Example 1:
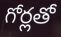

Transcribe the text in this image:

గోర్లతో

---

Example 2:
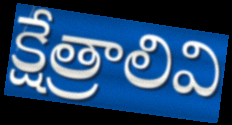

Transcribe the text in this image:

క్షేత్రాలివి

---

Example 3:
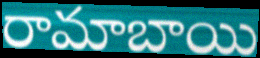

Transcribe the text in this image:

రామాబాయి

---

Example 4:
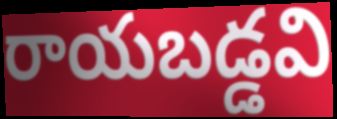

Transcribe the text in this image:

రాయబడ్డవి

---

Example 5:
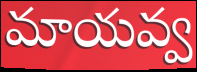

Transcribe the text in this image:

మాయవ్వ